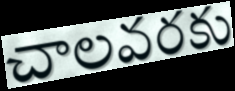
చాలవరకు